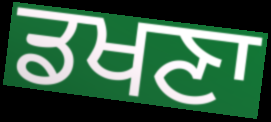
ਡਖਣਾ